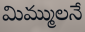
మిమ్ములనే